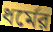
ধর্মের